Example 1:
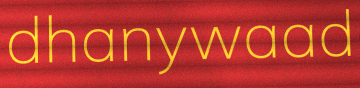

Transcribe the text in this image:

dhanywaad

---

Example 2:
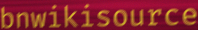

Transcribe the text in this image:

bnwikisource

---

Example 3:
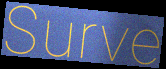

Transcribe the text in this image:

Surve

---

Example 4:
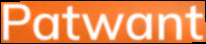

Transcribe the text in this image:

Patwant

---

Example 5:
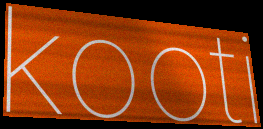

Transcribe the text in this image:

kooti